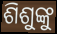
ଶିଶୁଙ୍କୁ